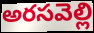
అరసవెల్లి